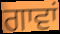
ਗਾਵਾਂ